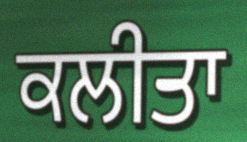
ਕਲੀਤਾ